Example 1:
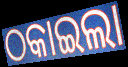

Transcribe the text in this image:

ଠକାଇଲା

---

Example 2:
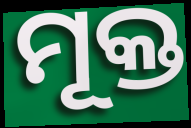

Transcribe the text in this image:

ମୂକ୍ତ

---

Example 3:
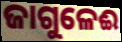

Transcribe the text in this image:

ଜାଗୁଳେଈ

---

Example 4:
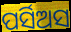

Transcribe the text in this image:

ପର୍ସିଅସ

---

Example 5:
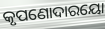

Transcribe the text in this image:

କୃପଣୋଦାରୟୋ